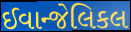
ઈવાન્જેલિકલ